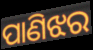
ପାଣିଝର